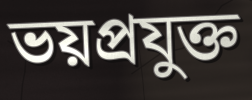
ভয়প্রযুক্ত